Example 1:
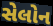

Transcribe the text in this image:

સેલોન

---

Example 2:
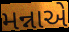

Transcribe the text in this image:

મન્નાએ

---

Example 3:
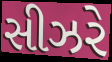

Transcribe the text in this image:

સીઝરે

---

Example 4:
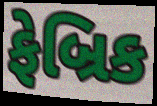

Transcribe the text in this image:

ફેબ્રિક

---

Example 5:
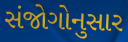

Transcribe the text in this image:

સંજોગોનુસાર